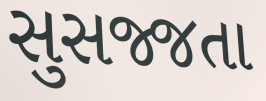
સુસજ્જતા